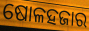
ଷୋଳହଜାର